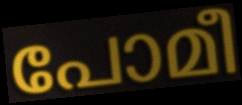
പോമീ